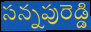
సన్నపురెడ్డి